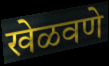
खेळवणे